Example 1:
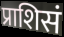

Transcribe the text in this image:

प्राशिसं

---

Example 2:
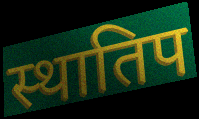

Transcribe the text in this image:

स्थातिप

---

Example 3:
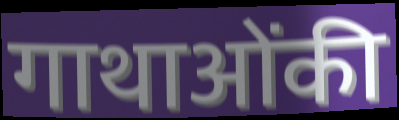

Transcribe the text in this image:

गाथाओंकी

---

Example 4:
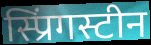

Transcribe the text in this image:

स्प्रिंगस्टीन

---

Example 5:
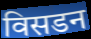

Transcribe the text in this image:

विसडन